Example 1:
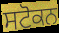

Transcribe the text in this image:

ਸਟੋਕਨ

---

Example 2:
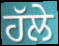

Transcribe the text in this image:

ਹੱਲੇ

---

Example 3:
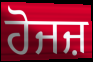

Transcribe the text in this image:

ਹੋਜਜ਼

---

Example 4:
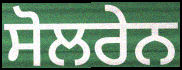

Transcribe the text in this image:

ਸੋਲਰੇਨ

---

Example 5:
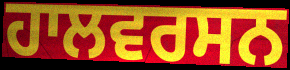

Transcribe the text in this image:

ਹਾਲਵਰਸਨ